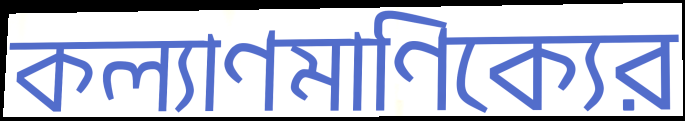
কল্যাণমাণিক্যের